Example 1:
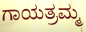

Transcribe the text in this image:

ಗಾಯತ್ರಮ್ಮ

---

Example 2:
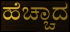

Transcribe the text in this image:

ಹೆಚ್ಚಾದ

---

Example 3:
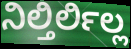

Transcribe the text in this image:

ನಿಲ್ತಿರ್ಲಿಲ್ಲ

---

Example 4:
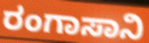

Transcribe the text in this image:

ರಂಗಾಸಾನಿ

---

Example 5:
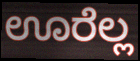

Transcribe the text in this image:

ಊರೆಲ್ಲ